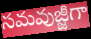
సమవుజ్జీగా